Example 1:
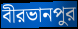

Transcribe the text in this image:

বীরভানপুর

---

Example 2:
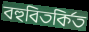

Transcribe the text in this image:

বহুবিতর্কিত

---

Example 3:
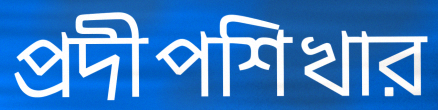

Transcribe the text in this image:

প্রদীপশিখার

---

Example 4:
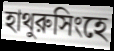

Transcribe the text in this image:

হাথুরুসিংহে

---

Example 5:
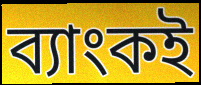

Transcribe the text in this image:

ব্যাংকই